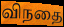
விநதை